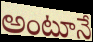
అంటూనే